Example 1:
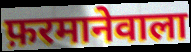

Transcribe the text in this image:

फ़रमानेवाला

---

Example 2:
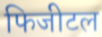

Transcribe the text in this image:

फिजीटल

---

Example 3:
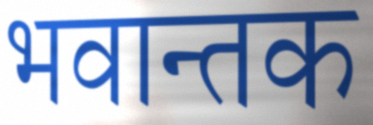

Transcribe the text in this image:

भवान्तक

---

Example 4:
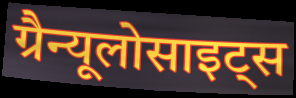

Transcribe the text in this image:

ग्रैन्यूलोसाइट्स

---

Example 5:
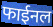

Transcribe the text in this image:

फाईनल